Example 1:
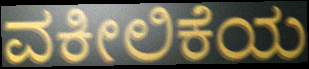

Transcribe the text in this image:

ವಕೀಲಿಕೆಯ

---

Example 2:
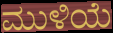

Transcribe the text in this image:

ಮುಳಿಯೆ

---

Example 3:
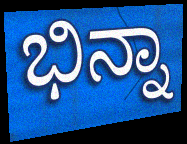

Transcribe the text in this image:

ಭಿನ್ನಾ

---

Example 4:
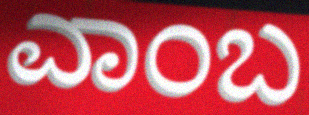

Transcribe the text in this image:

ಎಾಂಬ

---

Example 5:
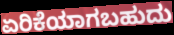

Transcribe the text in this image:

ಏರಿಕೆಯಾಗಬಹುದು